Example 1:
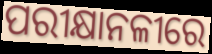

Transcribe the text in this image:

ପରୀକ୍ଷାନଳୀରେ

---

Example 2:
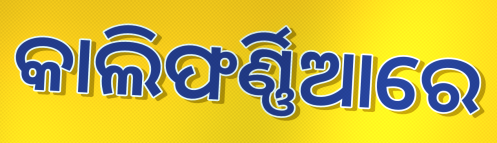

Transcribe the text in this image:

କାଲିଫର୍ଣ୍ଣିଆରେ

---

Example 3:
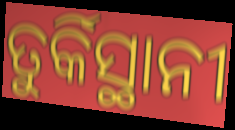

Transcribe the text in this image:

ତୁର୍କିସ୍ଥାନୀ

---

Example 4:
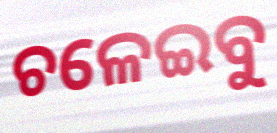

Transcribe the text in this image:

ଚଳେଇବୁ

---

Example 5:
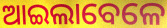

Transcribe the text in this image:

ଆଇଲାବେଳେ